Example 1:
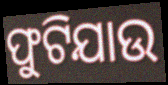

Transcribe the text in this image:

ଫୁଟିଯାଉ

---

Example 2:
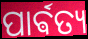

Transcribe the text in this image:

ପାର୍ଵତ୍ଯ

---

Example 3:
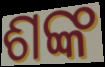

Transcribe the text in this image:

ଶଙ୍କ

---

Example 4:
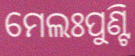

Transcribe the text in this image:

ମେଲଃପୁଣ୍ଟି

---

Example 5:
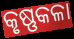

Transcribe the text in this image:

କୃଷ୍ଣକଳା